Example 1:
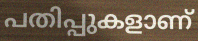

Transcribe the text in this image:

പതിപ്പുകളാണ്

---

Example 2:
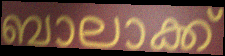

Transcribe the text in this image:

ബാലാക്ക്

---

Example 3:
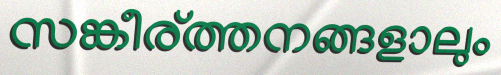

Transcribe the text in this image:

സങ്കീര്ത്തനങ്ങളാലും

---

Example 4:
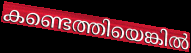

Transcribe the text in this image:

കണ്ടെത്തിയെങ്കിൽ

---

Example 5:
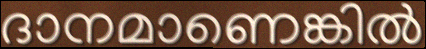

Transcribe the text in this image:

ദാനമാണെങ്കിൽ